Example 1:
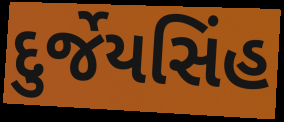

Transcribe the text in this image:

દુર્જેયસિંહ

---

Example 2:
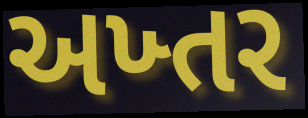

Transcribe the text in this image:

અખ્તર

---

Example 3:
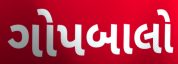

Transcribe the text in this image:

ગોપબાલો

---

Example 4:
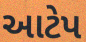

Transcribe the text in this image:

આટેપ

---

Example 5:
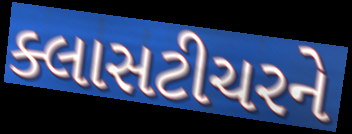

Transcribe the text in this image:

ક્લાસટીચરને